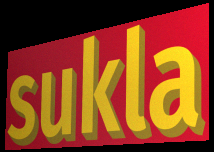
sukla